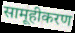
सामूहीकरण